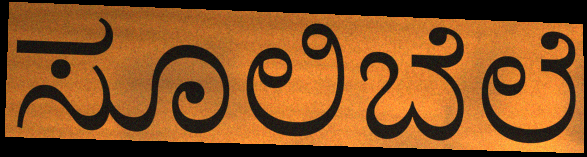
ಸೂಲಿಬೆಲೆ